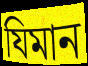
যিমান